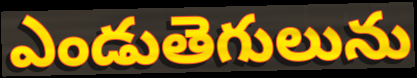
ఎండుతెగులును